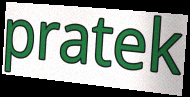
pratek